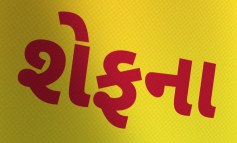
શેફના